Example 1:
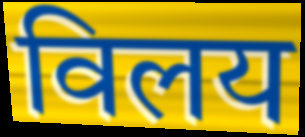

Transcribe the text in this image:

विलय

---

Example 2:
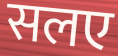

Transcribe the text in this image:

सलए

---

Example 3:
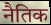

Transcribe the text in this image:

नैतिक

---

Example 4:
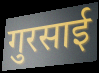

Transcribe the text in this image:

गुरसाई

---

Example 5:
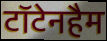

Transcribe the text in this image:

टॉटेनहैम